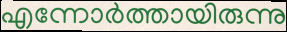
എന്നോർത്തായിരുന്നു